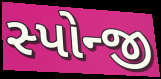
સ્પોન્જી